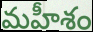
మహీశం